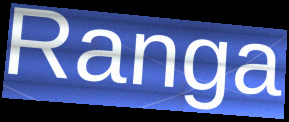
Ranga